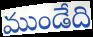
ముండేది